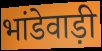
भांडेवाड़ी